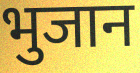
भुजान